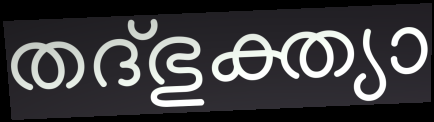
തദ്ഭുക്ത്യാ